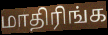
மாதிரிங்க